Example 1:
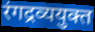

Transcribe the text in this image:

रंगद्रव्ययुक्त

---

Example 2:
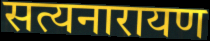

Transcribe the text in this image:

सत्यनारायण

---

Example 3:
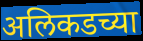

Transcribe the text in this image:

अलिकडच्या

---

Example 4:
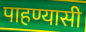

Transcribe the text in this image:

पाहण्यासी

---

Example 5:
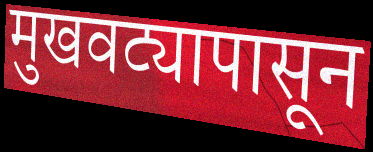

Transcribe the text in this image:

मुखवट्यापासून